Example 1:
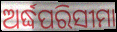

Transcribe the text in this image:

ଅର୍ଦ୍ଧପରିସୀମା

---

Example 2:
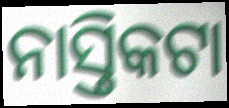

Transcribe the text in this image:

ନାସ୍ତିକଟା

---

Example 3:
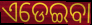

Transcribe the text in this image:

ଏଡେଇବା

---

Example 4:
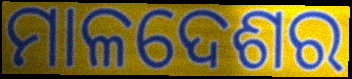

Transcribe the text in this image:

ମାଳଦେଶର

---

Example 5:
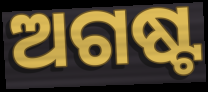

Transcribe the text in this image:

ଅଗଷ୍ଟ